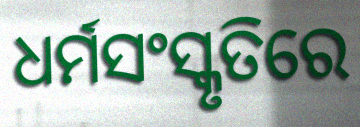
ଧର୍ମସଂସ୍କୃତିରେ